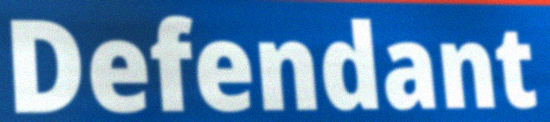
Defendant